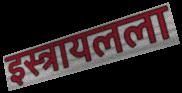
इस्त्रायलला